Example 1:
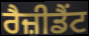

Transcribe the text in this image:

ਰੈਜ਼ੀਡੈਂਟ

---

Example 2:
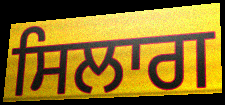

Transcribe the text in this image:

ਸਿਲਾਗ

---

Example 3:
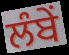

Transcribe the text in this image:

ਲੰਬੇਂ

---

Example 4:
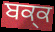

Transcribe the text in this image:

ਬਕ੍ਕ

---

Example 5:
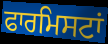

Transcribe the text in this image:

ਫਾਰਮਿਸਟਾਂ